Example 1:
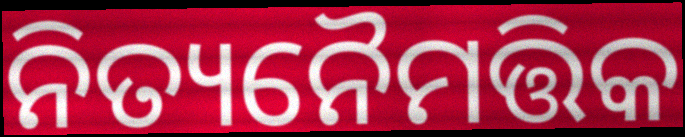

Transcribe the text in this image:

ନିତ୍ୟନୈମତ୍ତିକ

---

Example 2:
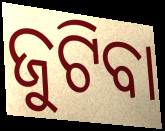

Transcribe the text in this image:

ଜୁଟିବା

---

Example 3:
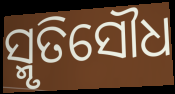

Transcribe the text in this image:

ସ୍ମୃତିସୌଧ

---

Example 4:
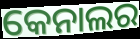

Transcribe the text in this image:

କେନାଲର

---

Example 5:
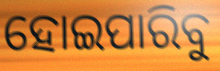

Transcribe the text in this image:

ହୋଇପାରିବୁ